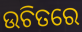
ଉଚିତରେ